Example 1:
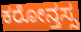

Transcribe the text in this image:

ಕರೋನ್ತಸ್ಸ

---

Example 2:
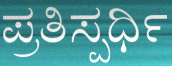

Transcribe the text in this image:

ಪ್ರತಿಸ್ಪರ್ಧಿ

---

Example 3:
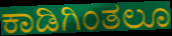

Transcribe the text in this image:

ಕಾಡಿಗಿಂತಲೂ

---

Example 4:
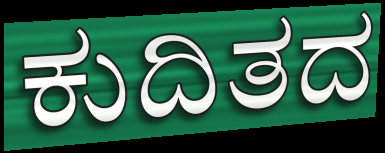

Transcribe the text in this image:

ಕುದಿತದ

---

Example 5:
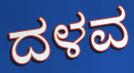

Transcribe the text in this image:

ದಳವ